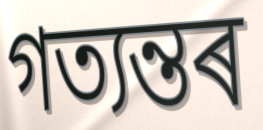
গত্যন্তৰ